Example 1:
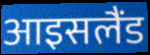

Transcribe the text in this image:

आइसलैंड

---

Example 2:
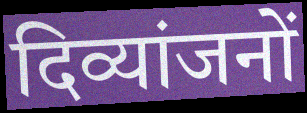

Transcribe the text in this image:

दिव्यांजनों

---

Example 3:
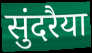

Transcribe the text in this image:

सुंदरैया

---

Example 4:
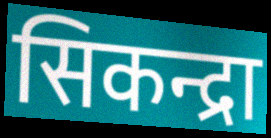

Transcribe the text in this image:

सिकन्द्रा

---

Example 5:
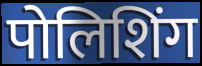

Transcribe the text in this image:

पोलिशिंग